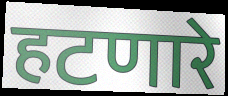
हटणारे